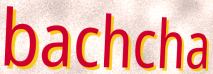
bachcha